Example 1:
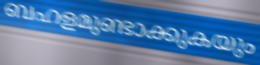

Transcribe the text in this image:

ബഹളമുണ്ടാക്കുകയും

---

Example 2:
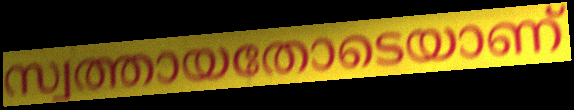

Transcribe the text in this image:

സ്വത്തായതോടെയാണ്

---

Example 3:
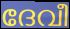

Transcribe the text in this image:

ദേവീ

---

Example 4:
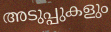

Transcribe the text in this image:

അടുപ്പുകളും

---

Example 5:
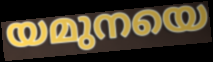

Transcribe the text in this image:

യമുനയെ